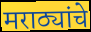
मराठ्यांचे